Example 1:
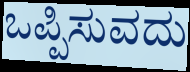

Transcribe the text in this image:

ಒಪ್ಪಿಸುವದು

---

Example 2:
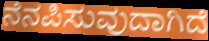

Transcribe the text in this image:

ನೆನಪಿಸುವುದಾಗಿದೆ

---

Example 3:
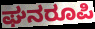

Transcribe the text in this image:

ಘನರೂಪಿ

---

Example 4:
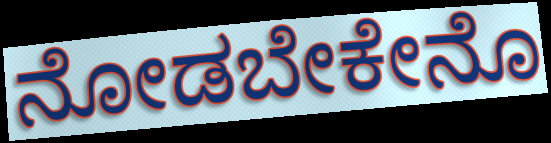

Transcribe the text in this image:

ನೋಡಬೇಕೇನೊ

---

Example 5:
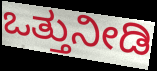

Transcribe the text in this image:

ಒತ್ತುನೀಡಿ